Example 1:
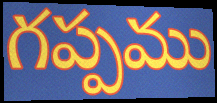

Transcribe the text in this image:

గప్పము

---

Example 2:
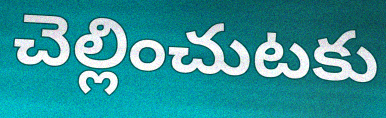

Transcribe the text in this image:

చెల్లించుటకు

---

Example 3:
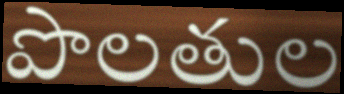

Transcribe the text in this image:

పొలతుల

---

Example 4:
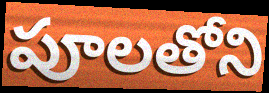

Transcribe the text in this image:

పూలతోని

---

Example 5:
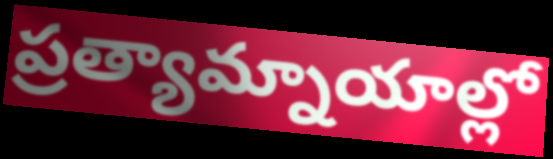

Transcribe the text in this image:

ప్రత్యామ్నాయాల్లో